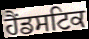
ਹੈਂਡਸਟਿਕ